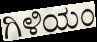
ಗಿಳಿಯಂ